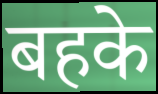
बहके